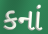
કનાં